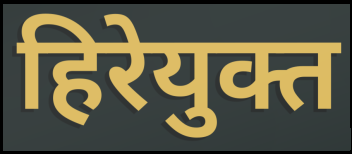
हिरेयुक्त